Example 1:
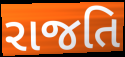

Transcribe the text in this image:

રાજતિ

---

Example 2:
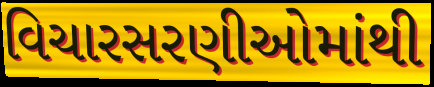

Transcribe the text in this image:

વિચારસરણીઓમાંથી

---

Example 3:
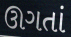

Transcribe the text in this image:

ઊગતાં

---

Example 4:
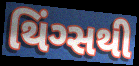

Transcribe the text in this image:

થિંગ્સથી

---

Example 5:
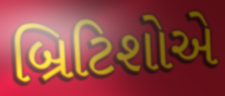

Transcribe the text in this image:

બ્રિટિશોએ